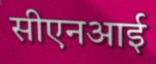
सीएनआई